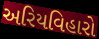
અરિયવિહારો